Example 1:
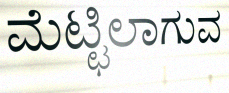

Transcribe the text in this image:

ಮೆಟ್ಟಿಲಾಗುವ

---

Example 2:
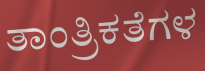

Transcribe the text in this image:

ತಾಂತ್ರಿಕತೆಗಳ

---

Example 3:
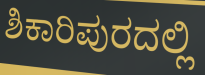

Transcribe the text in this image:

ಶಿಕಾರಿಪುರದಲ್ಲಿ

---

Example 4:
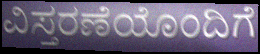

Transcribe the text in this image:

ವಿಸ್ತರಣೆಯೊಂದಿಗೆ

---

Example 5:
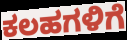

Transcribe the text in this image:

ಕಲಹಗಳಿಗೆ